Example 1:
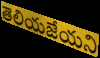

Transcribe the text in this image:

తెలియజేయని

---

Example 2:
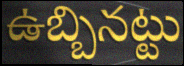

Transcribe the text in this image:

ఉబ్బినట్టు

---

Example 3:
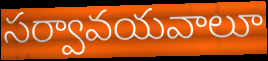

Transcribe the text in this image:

సర్వావయవాలూ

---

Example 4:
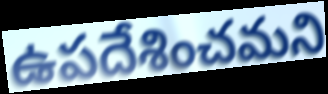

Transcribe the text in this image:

ఉపదేశించమని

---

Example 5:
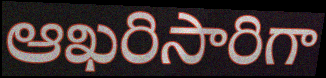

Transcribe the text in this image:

ఆఖరిసారిగా